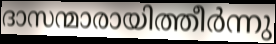
ദാസന്മാരായിത്തീർന്നു